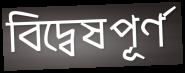
বিদ্বেষপূর্ণ